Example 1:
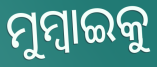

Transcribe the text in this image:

ମୁମ୍ବାଇକୁ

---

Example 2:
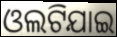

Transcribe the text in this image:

ଓଲଟିଯାଇ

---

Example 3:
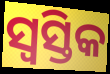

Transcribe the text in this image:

ସ୍ୱସ୍ତିକ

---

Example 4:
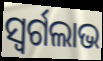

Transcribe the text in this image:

ସ୍ୱର୍ଗଲାଭ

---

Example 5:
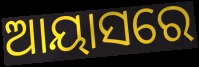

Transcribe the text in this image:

ଆୟାସରେ